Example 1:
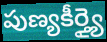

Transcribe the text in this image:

పుణ్యకీర్త్యై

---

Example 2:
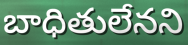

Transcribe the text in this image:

బాధితులేనని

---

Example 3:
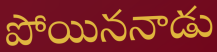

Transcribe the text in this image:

పోయిననాడు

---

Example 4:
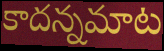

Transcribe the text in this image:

కాదన్నమాట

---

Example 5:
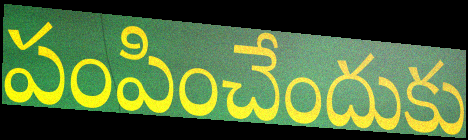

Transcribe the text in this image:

పంపించేందుకు